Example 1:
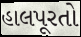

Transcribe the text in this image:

હાલપૂરતો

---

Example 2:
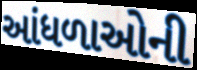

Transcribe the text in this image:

આંધળાઓની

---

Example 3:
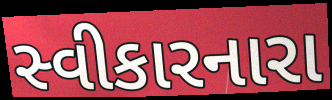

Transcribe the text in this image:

સ્વીકારનારા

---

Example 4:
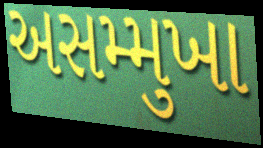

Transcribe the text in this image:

અસમ્મુખા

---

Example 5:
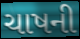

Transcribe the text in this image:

ચાષની